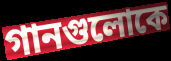
গানগুলোকে